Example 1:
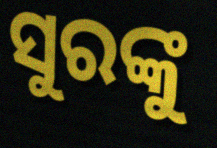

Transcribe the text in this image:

ସୁରଙ୍କୁ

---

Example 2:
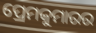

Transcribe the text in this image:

ପ୍ରେମକୁମାରର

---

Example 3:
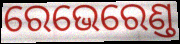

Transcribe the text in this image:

ରେଭେରେଣ୍ଡ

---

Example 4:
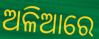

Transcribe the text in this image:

ଅଳିଆରେ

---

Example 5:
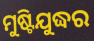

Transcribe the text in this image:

ମୁଷ୍ଟିଯୁଦ୍ଧର